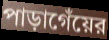
পাড়াগেঁয়ের